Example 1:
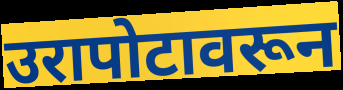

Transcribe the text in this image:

उरापोटावरून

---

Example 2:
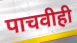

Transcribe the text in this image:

पाचवीही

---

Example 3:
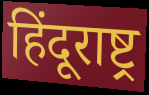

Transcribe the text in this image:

हिंदूराष्ट्र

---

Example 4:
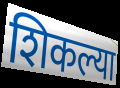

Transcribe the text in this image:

शिकल्या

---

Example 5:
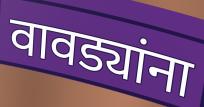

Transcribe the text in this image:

वावड्यांना